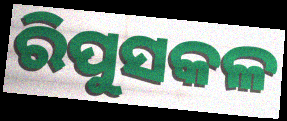
ରିପୁସକଳ